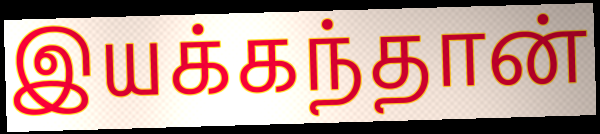
இயக்கந்தான்